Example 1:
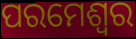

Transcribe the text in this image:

ପରମେଶ୍ୱର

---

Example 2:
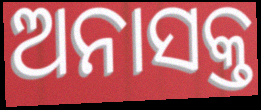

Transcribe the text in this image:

ଅନାସକ୍ତ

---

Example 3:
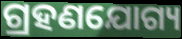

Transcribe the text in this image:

ଗ୍ରହଣଯୋଗ୍ୟ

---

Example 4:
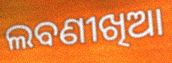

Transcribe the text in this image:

ଲବଣୀଖିଆ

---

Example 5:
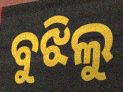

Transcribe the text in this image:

ବୁଝିଲୁ